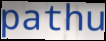
pathu